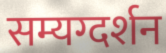
सम्‍यग्‍दर्शन